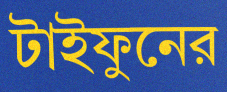
টাইফুনের